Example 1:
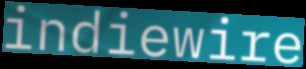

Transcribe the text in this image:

indiewire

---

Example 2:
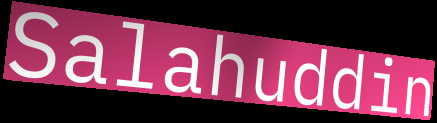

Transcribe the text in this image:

Salahuddin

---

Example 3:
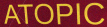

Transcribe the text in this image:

ATOPIC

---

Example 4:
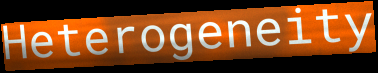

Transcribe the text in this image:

Heterogeneity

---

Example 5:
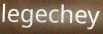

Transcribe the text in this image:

legechey